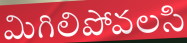
మిగిలిపోవలసి